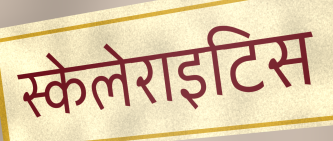
स्केलेराइटिस